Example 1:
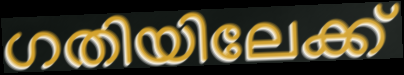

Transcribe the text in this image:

ഗതിയിലേക്ക്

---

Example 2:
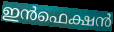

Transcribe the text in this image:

ഇൻഫെക്ഷൻ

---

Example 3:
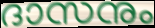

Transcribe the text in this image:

ദാസനും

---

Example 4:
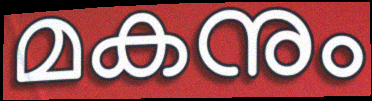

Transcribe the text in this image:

മകനും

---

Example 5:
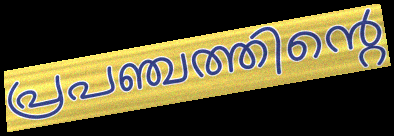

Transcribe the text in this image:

പ്രപഞ്ചത്തിന്റെ